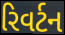
રિવર્ટન